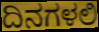
ದಿನಗಳಲಿ